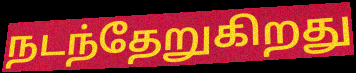
நடந்தேறுகிறது